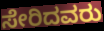
ಸೇರಿದವರು